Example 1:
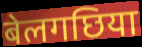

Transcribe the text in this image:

बेलगछिया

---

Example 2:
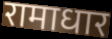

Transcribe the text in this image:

रामाधार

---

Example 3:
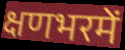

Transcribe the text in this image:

क्षणभरमें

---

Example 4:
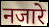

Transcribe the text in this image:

नजारे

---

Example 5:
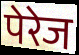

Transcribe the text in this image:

पेरेज